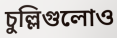
চুল্লিগুলোও